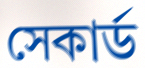
সেকার্ড